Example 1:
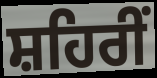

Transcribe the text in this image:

ਸ਼ਹਿਰੀਂ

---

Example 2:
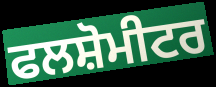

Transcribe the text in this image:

ਫਲਸ਼ੋਮੀਟਰ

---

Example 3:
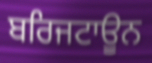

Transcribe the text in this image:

ਬਰਿਜਟਾਊਨ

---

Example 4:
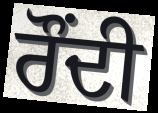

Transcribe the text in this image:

ਰੌਂਦੀ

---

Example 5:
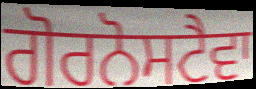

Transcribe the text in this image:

ਗੋਰਨੋਸਟੈਵਾ